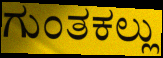
ಗುಂತಕಲ್ಲು